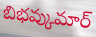
బిభవ్కుమార్